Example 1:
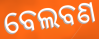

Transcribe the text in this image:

ବେଲବଣ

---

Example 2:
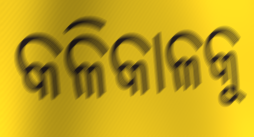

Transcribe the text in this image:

କଳିକାଳକୁ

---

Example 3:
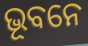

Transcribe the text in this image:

ଭୂବନେ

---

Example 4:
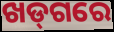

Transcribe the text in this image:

ଖଡ୍‌ଗରେ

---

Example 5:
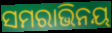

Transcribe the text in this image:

ସମରାଭିନୟ